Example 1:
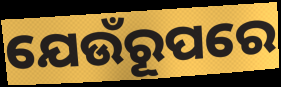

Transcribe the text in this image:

ଯେଉଁରୂପରେ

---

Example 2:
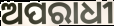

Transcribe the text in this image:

ଅପରାଧୀ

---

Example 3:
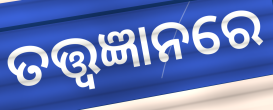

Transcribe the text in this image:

ତତ୍ତ୍ୱଜ୍ଞାନରେ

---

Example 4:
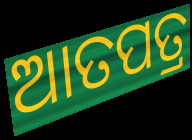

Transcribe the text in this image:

ଆତପତ୍ର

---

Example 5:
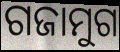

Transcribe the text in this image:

ଗଜାମୁଗ